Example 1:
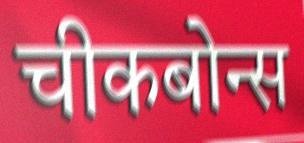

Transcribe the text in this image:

चीकबोन्स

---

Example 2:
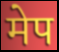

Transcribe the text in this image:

मेप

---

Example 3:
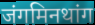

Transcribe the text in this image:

जंगमिनथांग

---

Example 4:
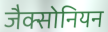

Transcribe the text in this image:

जैक्सोनियन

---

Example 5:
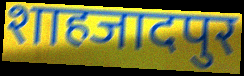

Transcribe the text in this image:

शाहजादपुर